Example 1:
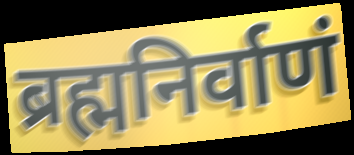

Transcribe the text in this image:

ब्रह्मनिर्वाणं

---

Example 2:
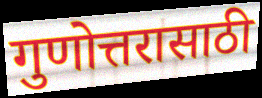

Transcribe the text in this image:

गुणोत्तरासाठी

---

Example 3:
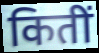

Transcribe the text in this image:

कितीं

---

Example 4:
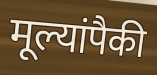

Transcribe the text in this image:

मूल्यांपैकी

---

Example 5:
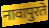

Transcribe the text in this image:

नावापुरते